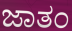
ಜಾತಂ